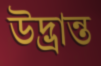
উদ্ভ্রান্ত